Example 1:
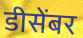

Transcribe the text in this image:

डीसेंबर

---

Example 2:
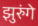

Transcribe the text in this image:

झुरुंगे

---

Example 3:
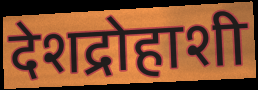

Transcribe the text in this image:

देशद्रोहाशी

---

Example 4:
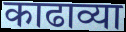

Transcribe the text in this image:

काढाव्या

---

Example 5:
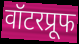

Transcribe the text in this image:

वॉटरप्रूफ